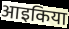
आइकिया